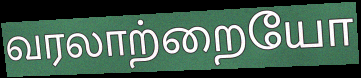
வரலாற்றையோ